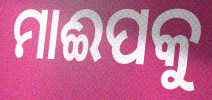
ମାଈପକୁ